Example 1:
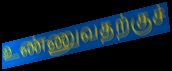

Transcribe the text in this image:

உண்ணுவதற்குச்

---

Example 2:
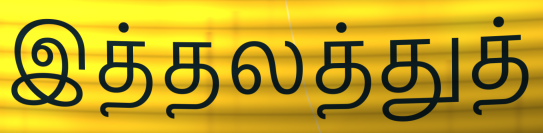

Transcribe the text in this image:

இத்தலத்துத்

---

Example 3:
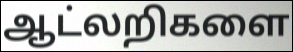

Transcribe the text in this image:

ஆட்லறிகளை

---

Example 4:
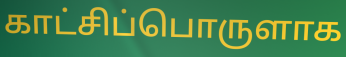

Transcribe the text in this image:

காட்சிப்பொருளாக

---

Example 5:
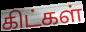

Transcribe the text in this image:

கிட்கள்